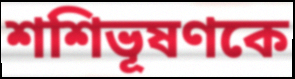
শশিভূষণকে